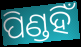
ପିଣ୍ଡହିଁ